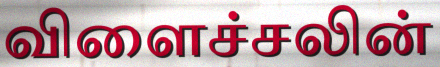
விளைச்சலின்